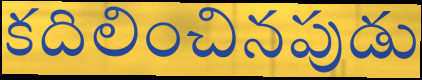
కదిలించినపుడు